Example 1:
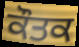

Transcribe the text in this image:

ਕੌਤਕ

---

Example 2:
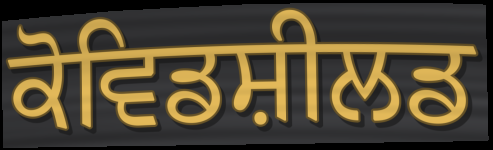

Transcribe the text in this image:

ਕੋਵਿਡਸ਼ੀਲਡ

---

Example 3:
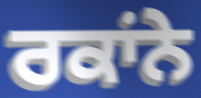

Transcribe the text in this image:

ਰਕਾਂਨੇ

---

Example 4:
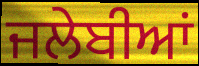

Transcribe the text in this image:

ਜਲੇਬੀਆਂ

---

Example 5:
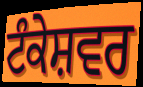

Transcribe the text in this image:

ਟੰਕੇਸ਼ਵਰ